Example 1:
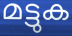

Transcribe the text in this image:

മട്ടുക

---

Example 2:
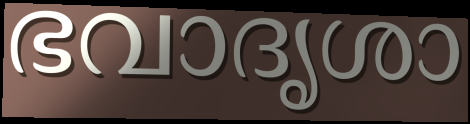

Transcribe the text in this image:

ഭവാദൃശാ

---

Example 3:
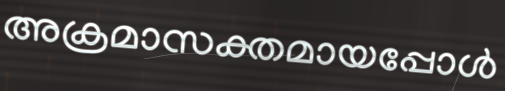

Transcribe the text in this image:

അക്രമാസക്തമായപ്പോൾ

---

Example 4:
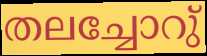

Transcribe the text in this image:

തലച്ചോറു്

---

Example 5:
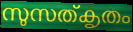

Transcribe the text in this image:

സുസത്കൃതം